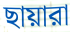
ছায়ারা